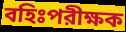
বহিঃপরীক্ষক